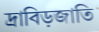
দ্রাবিড়জাতি